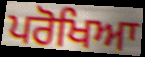
ਪਰੋਖਿਆ